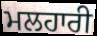
ਮਲਹਾਰੀ